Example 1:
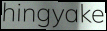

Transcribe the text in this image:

hingyake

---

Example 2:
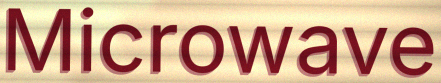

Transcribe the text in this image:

Microwave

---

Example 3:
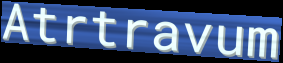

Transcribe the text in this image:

Atrtravum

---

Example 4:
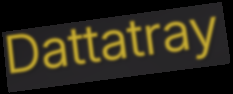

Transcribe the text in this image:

Dattatray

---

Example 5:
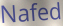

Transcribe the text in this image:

Nafed